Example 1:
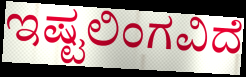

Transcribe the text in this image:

ಇಷ್ಟಲಿಂಗವಿದೆ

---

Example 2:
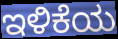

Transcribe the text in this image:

ಇಳಿಕೆಯ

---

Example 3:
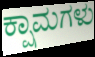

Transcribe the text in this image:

ಕ್ಷಾಮಗಳು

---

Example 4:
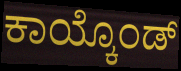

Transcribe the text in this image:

ಕಾಯ್ಕೊಂಡ್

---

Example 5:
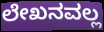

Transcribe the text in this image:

ಲೇಖನವಲ್ಲ